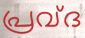
പ്രവ്ദ